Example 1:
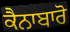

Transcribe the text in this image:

ਕੈਨਾਬਾਰੋ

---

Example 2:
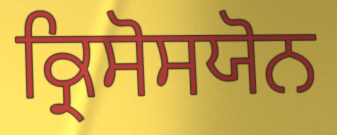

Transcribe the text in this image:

ਕ੍ਰਿਸੋਸਯੋਨ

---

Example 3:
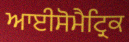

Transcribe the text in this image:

ਆਈਸੋਮੈਟ੍ਰਿਕ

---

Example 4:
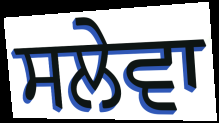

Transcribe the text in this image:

ਸਲੇਵਾ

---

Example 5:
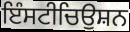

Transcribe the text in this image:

ਇੰਸਟੀਚਿਉਸ਼ਨ